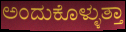
ಅಂದುಕೊಳ್ಳುತ್ತಾ